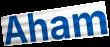
Aham